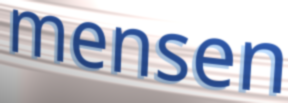
mensen